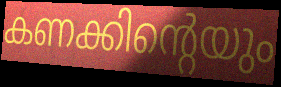
കണക്കിന്റെയും